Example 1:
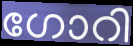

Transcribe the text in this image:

ഗോറി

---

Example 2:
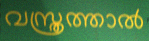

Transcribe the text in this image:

വസ്ത്രത്താൽ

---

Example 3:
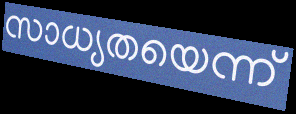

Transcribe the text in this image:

സാധ്യതയെന്ന്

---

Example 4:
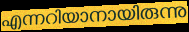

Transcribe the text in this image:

എന്നറിയാനായിരുന്നു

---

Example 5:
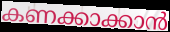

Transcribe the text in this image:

കണക്കാക്കാൻ